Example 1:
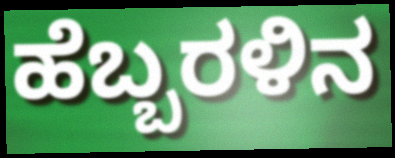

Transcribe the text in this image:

ಹೆಬ್ಬರಳಿನ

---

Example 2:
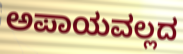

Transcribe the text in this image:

ಅಪಾಯವಲ್ಲದ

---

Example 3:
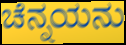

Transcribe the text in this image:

ಚೆನ್ನಯನು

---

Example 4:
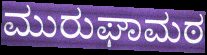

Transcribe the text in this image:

ಮುರುಘಾಮಠ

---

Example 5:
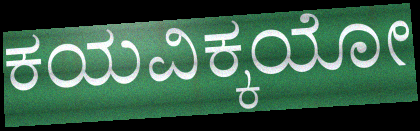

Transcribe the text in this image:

ಕಯವಿಕ್ಕಯೋ